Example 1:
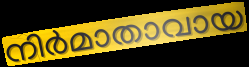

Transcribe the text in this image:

നിർമാതാവായ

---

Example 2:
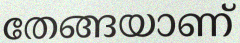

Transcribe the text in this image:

തേങ്ങയാണ്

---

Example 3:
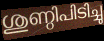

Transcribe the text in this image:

ശുണ്ഠിപിടിച്ചു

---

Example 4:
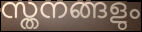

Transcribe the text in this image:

സ്തനങ്ങളും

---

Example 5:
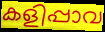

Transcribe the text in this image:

കളിപ്പാവ